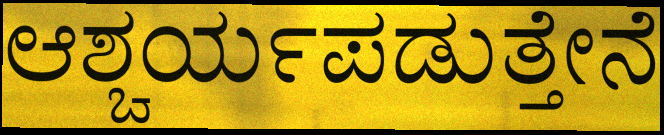
ಆಶ್ಚರ್ಯಪಡುತ್ತೇನೆ